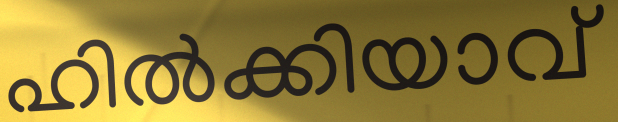
ഹിൽക്കിയാവ്